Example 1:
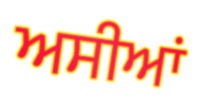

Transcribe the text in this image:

ਅਸੀਆਂ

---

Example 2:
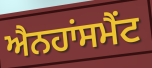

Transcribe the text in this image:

ਐਨਹਾਂਸਮੈਂਟ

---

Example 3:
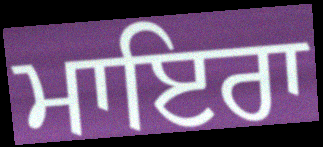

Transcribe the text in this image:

ਮਾਇਰਾ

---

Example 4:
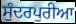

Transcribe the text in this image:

ਸੁੰਦਰਪੁਰੀਆ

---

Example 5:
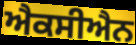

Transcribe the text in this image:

ਐਕਸੀਐਨ